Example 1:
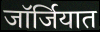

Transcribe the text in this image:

जॉर्जियात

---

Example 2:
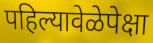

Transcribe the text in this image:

पहिल्यावेळेपेक्षा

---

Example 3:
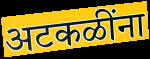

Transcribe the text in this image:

अटकळींना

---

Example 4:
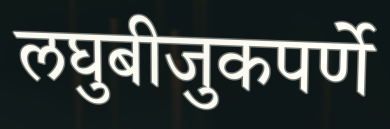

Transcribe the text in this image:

लघुबीजुकपर्णे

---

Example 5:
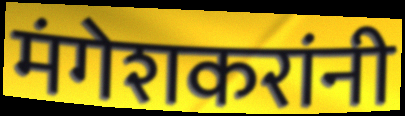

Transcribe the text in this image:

मंगेशकरांनी